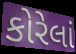
કોરેલાં